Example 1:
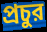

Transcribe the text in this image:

প্রচুর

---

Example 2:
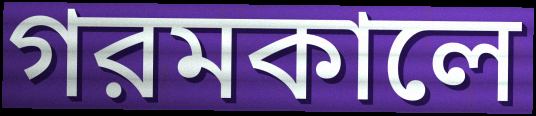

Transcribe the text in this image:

গরমকালে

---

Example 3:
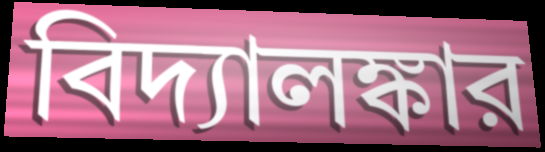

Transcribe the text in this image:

বিদ্যালঙ্কার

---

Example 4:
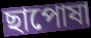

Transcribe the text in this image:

ছাপোষা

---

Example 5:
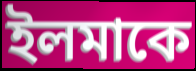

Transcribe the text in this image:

ইলমাকে